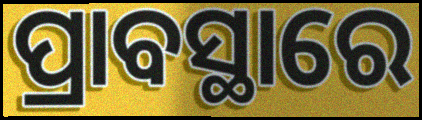
ପ୍ରାବସ୍ଥାରେ